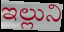
ఇల్లుని